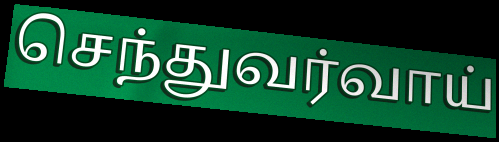
செந்துவர்வாய்